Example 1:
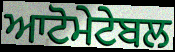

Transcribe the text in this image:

ਆਟੋਮੇਟੇਬਲ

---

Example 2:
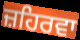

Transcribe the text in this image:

ਜ਼ਹਿਰਵਾ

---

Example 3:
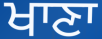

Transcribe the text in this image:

ਖਾਣਾ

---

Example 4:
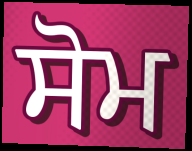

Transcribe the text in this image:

ਸੋਮ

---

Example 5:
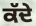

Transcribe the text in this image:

ਕੱਦੇ